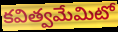
కవిత్వమేమిటో